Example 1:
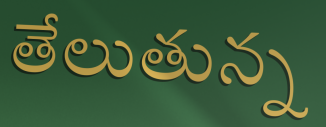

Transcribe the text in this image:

తేలుతున్న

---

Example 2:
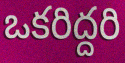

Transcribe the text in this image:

ఒకరిద్దరి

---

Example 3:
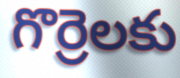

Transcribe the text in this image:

గొర్రెలకు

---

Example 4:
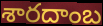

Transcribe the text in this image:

శారదాంబ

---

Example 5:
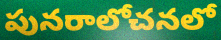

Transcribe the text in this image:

పునరాలోచనలో